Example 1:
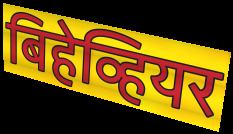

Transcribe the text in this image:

बिहेव्हियर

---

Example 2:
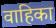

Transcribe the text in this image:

वाहिका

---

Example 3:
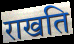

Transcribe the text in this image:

राखति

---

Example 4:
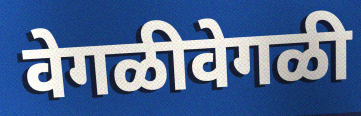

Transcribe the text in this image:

वेगळीवेगळी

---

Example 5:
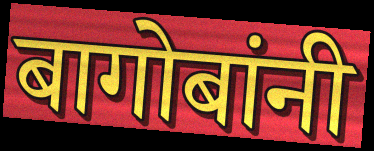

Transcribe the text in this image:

बागोबांनी